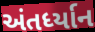
અંતર્ધ્યાન